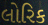
લોરિક